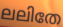
ലലിതേ